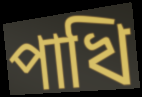
পাখি